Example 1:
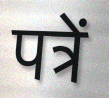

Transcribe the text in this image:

पत्रें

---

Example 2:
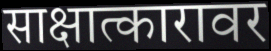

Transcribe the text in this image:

साक्षात्कारावर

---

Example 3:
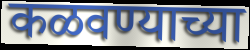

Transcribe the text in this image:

कळवण्याच्या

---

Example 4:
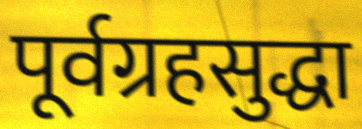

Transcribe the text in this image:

पूर्वग्रहसुद्धा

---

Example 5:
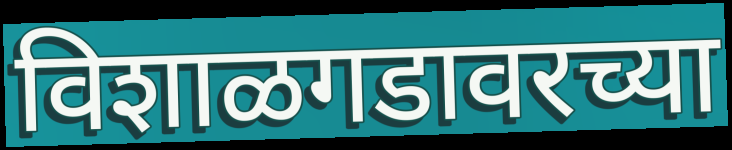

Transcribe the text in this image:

विशाळगडावरच्या